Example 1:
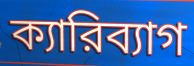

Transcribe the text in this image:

ক্যারিব্যাগ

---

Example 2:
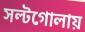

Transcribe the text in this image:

সল্টগোলায়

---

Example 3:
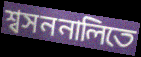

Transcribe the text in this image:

শ্বসননালিতে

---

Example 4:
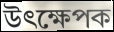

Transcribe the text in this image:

উৎক্ষেপক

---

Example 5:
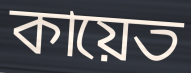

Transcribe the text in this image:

কায়েত